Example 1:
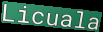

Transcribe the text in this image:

Licuala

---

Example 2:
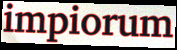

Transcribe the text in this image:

impiorum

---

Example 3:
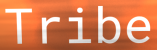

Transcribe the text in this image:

Tribe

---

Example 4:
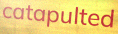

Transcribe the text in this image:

catapulted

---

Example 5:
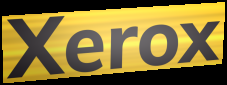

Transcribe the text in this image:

Xerox